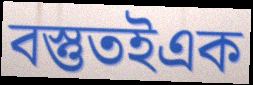
বস্তুতইএক